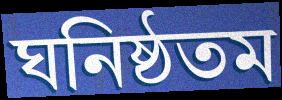
ঘনিষ্ঠতম